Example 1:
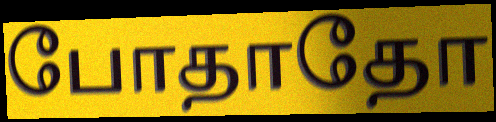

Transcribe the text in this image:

போதாதோ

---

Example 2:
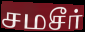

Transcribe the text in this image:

சமசீர்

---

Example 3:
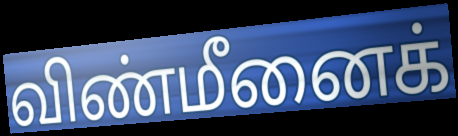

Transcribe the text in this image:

விண்மீனைக்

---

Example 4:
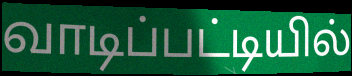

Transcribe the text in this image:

வாடிப்பட்டியில்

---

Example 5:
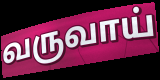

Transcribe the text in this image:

வருவாய்